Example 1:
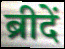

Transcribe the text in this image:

ब्रीदें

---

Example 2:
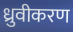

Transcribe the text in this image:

ध्रुवीकरण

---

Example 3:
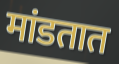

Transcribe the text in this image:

मांडतात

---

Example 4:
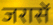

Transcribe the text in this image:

जरासें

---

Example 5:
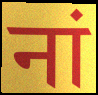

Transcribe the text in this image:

नां